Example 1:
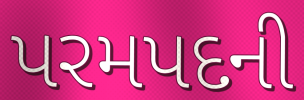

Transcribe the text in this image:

પરમપદની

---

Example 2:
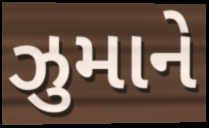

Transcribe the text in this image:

ઝુમાને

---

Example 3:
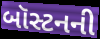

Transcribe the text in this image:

બૉસ્ટનની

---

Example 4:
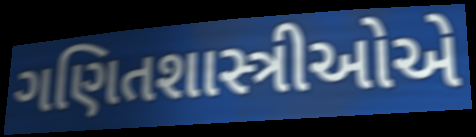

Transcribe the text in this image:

ગણિતશાસ્ત્રીઓએ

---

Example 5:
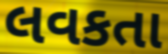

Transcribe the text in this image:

લવકતા